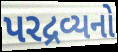
પરદ્રવ્યનો